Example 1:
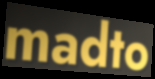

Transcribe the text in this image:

madto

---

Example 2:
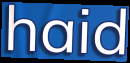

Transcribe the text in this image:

haid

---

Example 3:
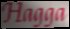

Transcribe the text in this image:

Hagga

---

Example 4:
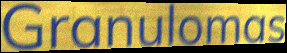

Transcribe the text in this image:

Granulomas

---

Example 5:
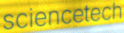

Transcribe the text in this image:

sciencetech